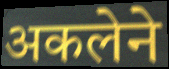
अकलेने